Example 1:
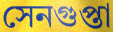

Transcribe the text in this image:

সেনগুপ্তা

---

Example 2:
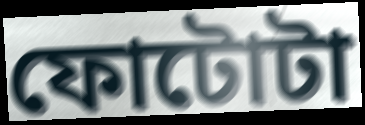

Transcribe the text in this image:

ফোটোটা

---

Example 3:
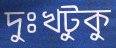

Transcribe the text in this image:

দুঃখটুকু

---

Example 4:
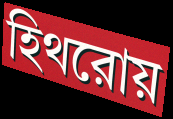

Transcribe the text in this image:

হিথরোয়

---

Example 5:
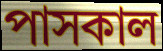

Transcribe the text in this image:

পাসকাল